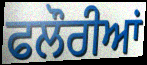
ਫਲੌਰੀਆਂ